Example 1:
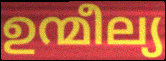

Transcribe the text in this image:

ഉന്മീല്യ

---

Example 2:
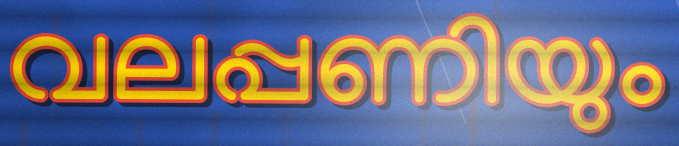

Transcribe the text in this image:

വലപ്പണിയും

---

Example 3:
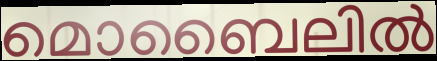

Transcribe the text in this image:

മൊബൈലിൽ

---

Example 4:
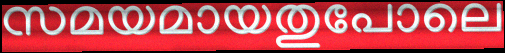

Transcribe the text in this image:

സമയമായതുപോലെ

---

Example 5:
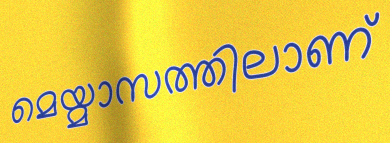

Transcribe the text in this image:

മെയ്മാസത്തിലാണ്